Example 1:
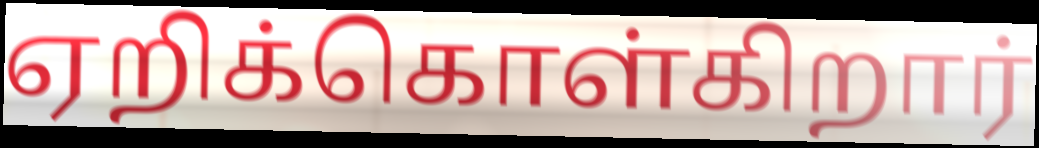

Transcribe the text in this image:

ஏறிக்கொள்கிறார்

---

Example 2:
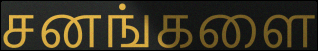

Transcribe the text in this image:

சனங்களை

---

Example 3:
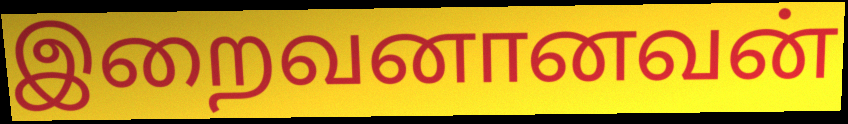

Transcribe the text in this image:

இறைவனானவன்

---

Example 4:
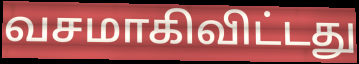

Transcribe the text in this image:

வசமாகிவிட்டது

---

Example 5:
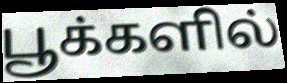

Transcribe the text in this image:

பூக்களில்